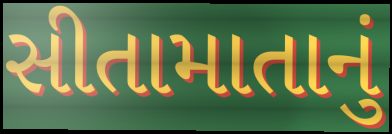
સીતામાતાનું